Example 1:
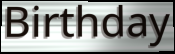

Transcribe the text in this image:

Birthday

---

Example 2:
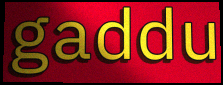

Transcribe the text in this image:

gaddu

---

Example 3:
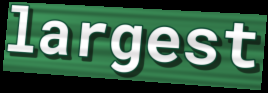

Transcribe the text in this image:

largest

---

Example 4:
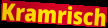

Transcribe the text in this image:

Kramrisch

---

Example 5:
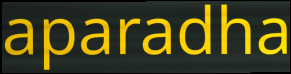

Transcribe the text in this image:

aparadha